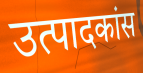
उत्पादकांस